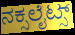
ನಕ್ಸಲೈಟ್ಸ್